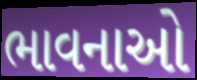
ભાવનાઓ